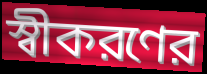
স্বীকরণের